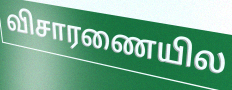
விசாரணையில